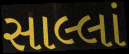
સાલ્લાં